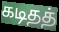
கடிதத்